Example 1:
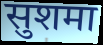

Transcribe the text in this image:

सुशमा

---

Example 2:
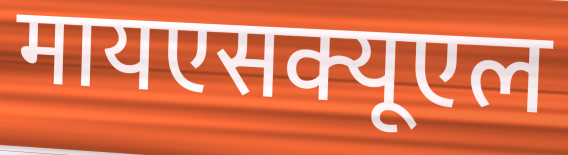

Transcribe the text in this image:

मायएसक्यूएल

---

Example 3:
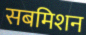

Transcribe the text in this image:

सबमिशन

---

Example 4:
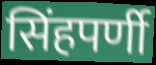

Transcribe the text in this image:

सिंहपर्णी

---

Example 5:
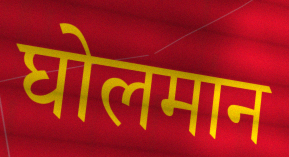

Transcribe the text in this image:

घोलमान